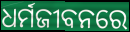
ଧର୍ମଜୀବନରେ